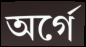
অর্গে